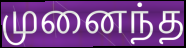
முனைந்த